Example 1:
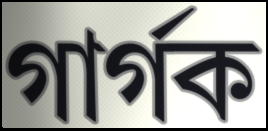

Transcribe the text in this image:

গাৰ্গক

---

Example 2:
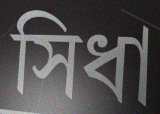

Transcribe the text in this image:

সিধা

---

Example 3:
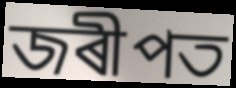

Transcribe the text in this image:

জৰীপত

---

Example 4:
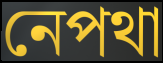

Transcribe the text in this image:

নেপথা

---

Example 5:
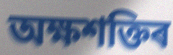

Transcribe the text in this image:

অক্ষশক্তিৰ